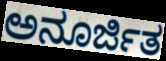
ಅನೂರ್ಜಿತ